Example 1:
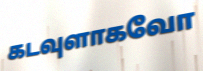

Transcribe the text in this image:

கடவுளாகவோ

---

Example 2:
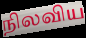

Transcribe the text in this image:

நிலவிய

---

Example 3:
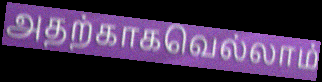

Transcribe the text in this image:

அதற்காகவெல்லாம்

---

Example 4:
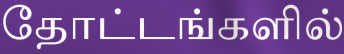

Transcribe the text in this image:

தோட்டங்களில்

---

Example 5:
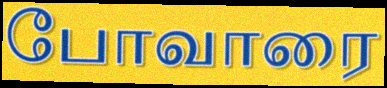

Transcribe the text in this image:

போவாரை